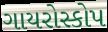
ગાયરોસ્કોપ